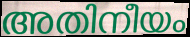
അതിനീയം